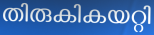
തിരുകികയറ്റി